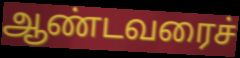
ஆண்டவரைச்